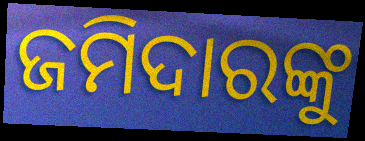
ଜମିଦାରଙ୍କୁ